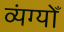
व्यंग्योँ